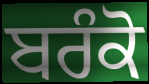
ਬਰੰਕੋ